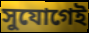
সুযোগেই